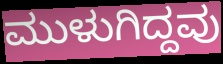
ಮುಳುಗಿದ್ದವು